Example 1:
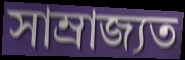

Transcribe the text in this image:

সাম্ৰাজ্যত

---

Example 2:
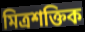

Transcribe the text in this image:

মিত্ৰশক্তিক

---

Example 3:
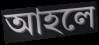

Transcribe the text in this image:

আহলে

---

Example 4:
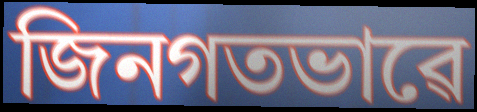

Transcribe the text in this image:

জিনগতভাৱে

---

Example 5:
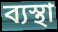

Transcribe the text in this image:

ব্যস্থা